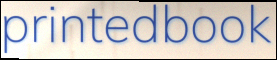
printedbook